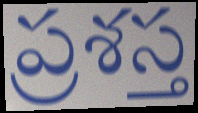
ప్రశస్త